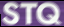
STQ